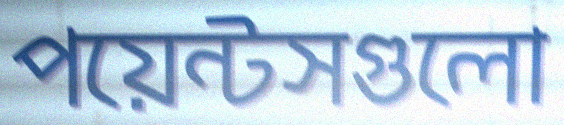
পয়েন্টসগুলো